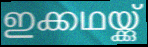
ഇക്കഥയ്ക്കു്